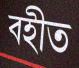
বহীত